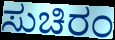
ಸುಚಿರಂ